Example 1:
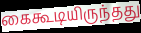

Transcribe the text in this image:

கைகூடியிருந்தது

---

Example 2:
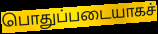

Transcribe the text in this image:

பொதுப்படையாகச்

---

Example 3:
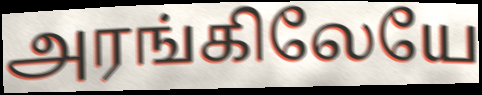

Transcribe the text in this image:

அரங்கிலேயே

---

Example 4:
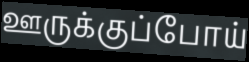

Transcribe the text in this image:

ஊருக்குப்போய்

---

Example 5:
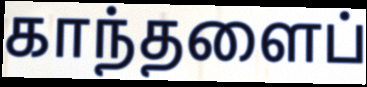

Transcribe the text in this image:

காந்தளைப்